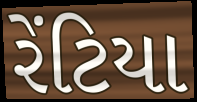
રેંટિયા